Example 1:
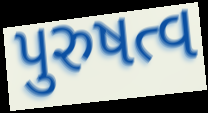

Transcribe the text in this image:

પુરુષત્વ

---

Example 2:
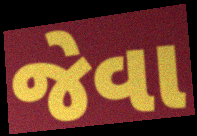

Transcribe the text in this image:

જેવા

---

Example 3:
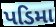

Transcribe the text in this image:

પડિમા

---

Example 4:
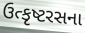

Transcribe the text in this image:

ઉત્કૃષ્ટરસના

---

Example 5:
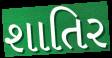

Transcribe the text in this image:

શાતિર